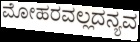
ಮೋಹರವಲ್ಲದನ್ಯವ